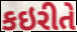
કઇરીતે